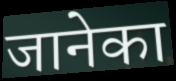
जानेका